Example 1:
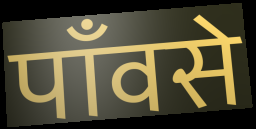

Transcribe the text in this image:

पाँवसे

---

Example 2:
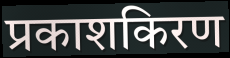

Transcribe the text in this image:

प्रकाशकिरण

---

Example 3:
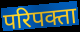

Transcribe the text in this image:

परिपक्ता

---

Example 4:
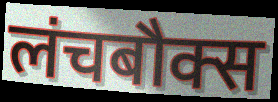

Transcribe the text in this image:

लंचबौक्स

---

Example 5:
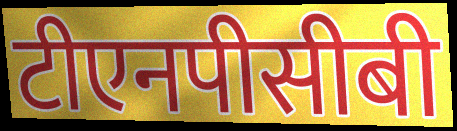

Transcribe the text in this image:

टीएनपीसीबी